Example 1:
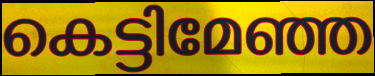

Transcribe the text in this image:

കെട്ടിമേഞ്ഞ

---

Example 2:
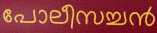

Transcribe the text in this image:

പോലീസച്ചൻ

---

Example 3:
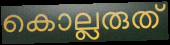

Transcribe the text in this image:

കൊല്ലരുത്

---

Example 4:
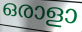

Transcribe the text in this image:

ഒരാളാ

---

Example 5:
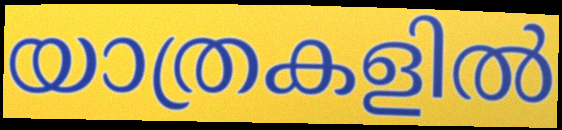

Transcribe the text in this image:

യാത്രകളിൽ